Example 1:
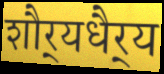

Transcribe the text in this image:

शौर्यधैर्य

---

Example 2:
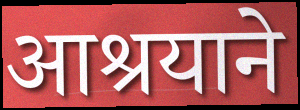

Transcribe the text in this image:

आश्रयाने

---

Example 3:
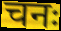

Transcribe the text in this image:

चनः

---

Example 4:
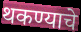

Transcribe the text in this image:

थकण्याचे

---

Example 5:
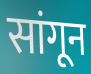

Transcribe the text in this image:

सांगून